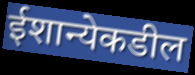
ईशान्येकडील